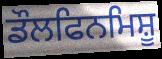
ਡੌਲਫਿਨਮਿਸ਼ੂ